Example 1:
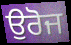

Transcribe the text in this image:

ਉਰੋਜ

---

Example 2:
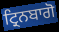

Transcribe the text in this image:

ਟ੍ਰਿਨਬਾਗੋ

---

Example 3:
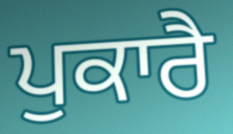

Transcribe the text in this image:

ਪੁਕਾਰੈ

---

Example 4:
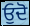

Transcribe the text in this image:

ਓੁਦੋ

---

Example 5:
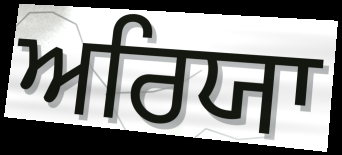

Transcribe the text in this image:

ਅਰਿਯਾ